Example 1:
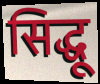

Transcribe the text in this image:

सिद्धू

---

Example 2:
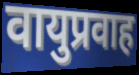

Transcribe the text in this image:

वायुप्रवाह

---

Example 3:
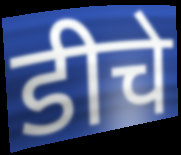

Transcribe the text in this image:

डीचे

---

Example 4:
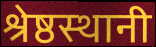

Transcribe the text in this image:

श्रेष्ठस्थानी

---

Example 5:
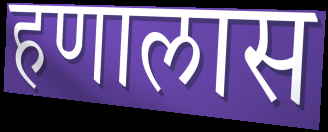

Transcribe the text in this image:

हणालास